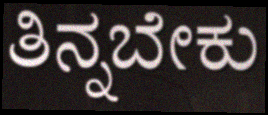
ತಿನ್ನಬೇಕು